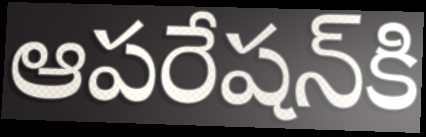
ఆపరేషన్‌కి